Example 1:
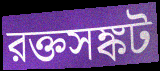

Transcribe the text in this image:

রক্তসঙ্কট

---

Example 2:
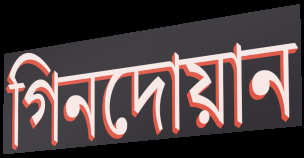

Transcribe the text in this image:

গিনদোয়ান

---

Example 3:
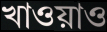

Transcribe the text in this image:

খাওয়াও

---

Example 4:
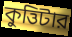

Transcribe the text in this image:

কুত্তিটার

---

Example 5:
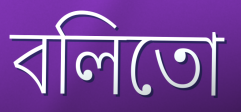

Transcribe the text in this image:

বলিতো